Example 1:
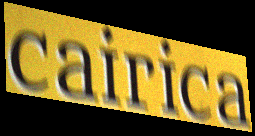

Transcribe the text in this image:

cairica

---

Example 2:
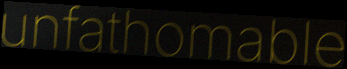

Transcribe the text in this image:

unfathomable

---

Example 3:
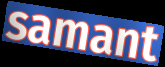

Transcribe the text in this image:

samant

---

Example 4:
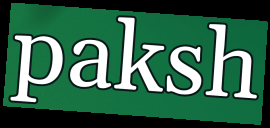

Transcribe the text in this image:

paksh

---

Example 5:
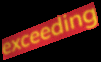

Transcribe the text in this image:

exceeding